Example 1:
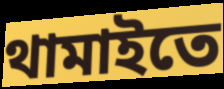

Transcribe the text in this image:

থামাইতে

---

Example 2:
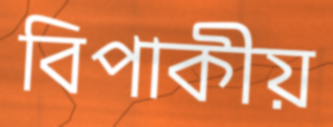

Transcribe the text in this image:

বিপাকীয়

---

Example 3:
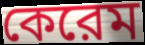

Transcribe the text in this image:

কেরেম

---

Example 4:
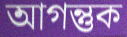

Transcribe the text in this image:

আগন্তুক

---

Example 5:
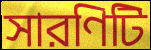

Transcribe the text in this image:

সারণিটি